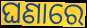
ଘଣାରେ